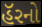
હૅરનો